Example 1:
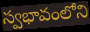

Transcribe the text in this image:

స్వభావంలోని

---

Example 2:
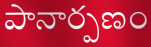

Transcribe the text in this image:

పానార్పణం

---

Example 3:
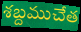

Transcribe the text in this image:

శబ్దముచేత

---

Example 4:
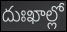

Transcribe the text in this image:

దుఃఖాల్లో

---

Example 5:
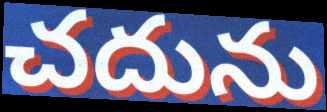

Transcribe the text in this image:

చదును